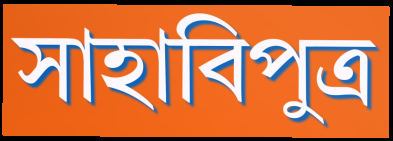
সাহাবিপুত্র